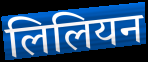
लिलियन